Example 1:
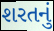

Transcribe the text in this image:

શરતનું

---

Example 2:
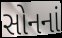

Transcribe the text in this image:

સોનનાં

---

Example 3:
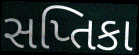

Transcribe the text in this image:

સપ્તિકા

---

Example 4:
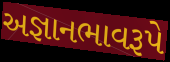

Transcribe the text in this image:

અજ્ઞાનભાવરૂપે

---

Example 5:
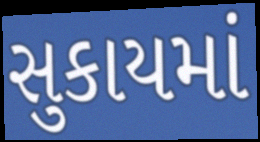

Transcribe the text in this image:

સુકાયમાં